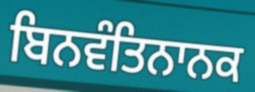
ਬਿਨਵੰਤਿਨਾਨਕ